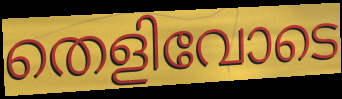
തെളിവോടെ